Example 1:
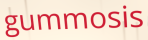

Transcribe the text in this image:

gummosis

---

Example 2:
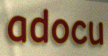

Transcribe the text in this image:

adocu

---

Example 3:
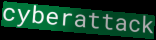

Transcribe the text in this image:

cyberattack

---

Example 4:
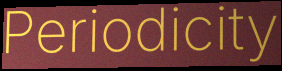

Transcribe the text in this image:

Periodicity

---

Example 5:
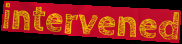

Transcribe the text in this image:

intervened